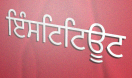
ਇੰਸਟਿਟਿਊਟ